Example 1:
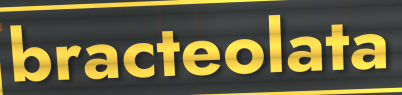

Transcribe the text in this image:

bracteolata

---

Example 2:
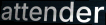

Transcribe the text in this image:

attender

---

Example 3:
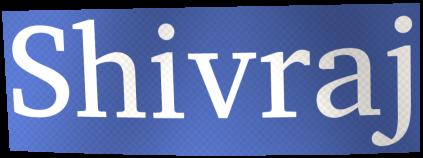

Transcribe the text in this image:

Shivraj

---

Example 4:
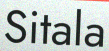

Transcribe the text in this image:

Sitala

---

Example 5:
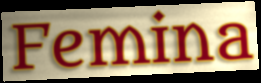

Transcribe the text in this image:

Femina